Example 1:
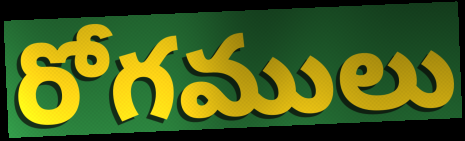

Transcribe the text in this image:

రోగములు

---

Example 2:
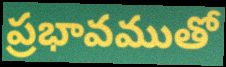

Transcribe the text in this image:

ప్రభావముతో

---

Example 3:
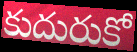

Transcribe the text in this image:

కుదురుకో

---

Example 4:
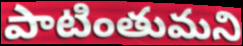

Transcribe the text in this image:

పాటింతుమని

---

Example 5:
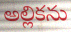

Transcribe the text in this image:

అల్లికను